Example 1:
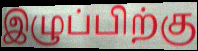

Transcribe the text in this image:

இழுப்பிற்கு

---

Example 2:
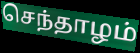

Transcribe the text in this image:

செந்தாழம்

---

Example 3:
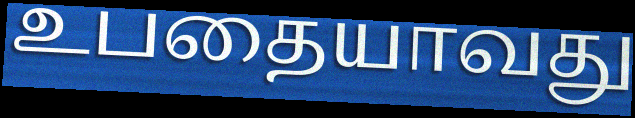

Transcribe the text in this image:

உபதையாவது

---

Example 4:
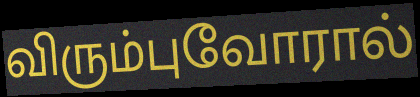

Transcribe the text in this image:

விரும்புவோரால்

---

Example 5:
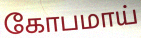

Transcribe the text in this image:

கோபமாய்